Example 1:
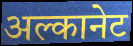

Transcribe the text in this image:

अल्कानेट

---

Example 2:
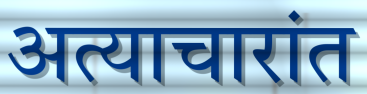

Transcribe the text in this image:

अत्याचारांत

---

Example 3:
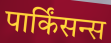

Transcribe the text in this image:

पार्किंसन्स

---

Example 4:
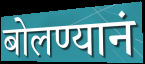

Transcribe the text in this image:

बोलण्यानं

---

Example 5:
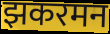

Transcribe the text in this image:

झकरमन